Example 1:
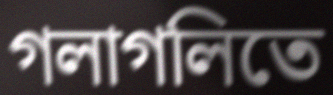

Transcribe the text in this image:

গলাগলিতে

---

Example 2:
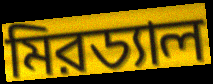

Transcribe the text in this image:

মিরড্যাল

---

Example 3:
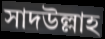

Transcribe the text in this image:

সাদউল্লাহ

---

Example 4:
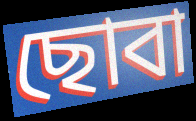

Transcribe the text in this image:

ছোবা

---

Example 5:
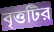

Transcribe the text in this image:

বৃত্তটির